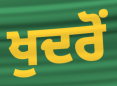
ਖੁਦਰੋਂ